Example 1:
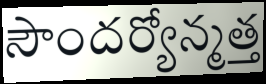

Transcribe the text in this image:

సౌందర్యోన్మత్త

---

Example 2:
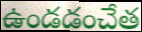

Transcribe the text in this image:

ఉండడంచేత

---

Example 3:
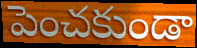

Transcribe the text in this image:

పెంచకుండా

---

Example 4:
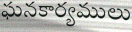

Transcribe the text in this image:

ఘనకార్యములు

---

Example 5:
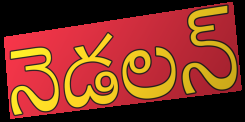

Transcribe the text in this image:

నెడలన్